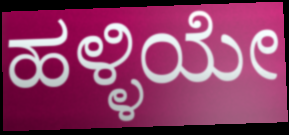
ಹಳ್ಳಿಯೇ